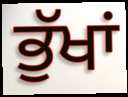
ਭੁੱਖਾਂ